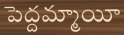
పెద్దమ్మాయీ